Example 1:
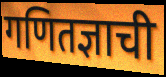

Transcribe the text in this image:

गणितज्ञाची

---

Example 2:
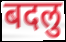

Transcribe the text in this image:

बदलु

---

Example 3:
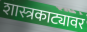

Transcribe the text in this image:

शास्त्रकाट्यावर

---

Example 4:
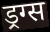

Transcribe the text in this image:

ड्रग्स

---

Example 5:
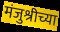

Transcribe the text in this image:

मंजुश्रीच्या